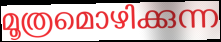
മൂത്രമൊഴിക്കുന്ന